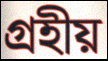
গ্রহীয়